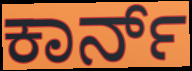
ಕಾರ್ನ್